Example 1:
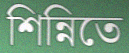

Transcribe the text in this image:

শিন্নিতে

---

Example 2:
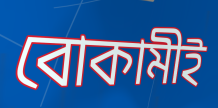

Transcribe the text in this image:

বোকামীই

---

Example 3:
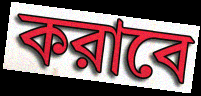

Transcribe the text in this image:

করাবে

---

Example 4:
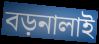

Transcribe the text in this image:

বড়নালাই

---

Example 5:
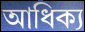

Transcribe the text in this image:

আধিক্য